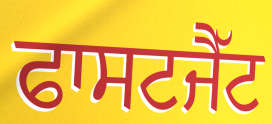
ਫਾਸਟਜੈੱਟ